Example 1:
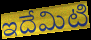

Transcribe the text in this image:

ఇదేమిటి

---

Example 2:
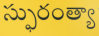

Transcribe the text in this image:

స్ఫురంత్యా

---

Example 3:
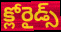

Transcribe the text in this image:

క్లోరైడ్స్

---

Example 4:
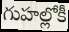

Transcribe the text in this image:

గుహల్లోకీ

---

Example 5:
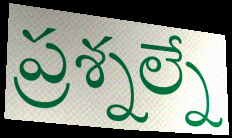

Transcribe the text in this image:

ప్రశ్నల్నే